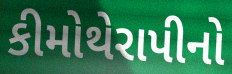
કીમોથેરાપીનો